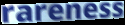
rareness